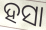
ହସା